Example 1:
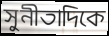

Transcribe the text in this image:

সুনীতাদিকে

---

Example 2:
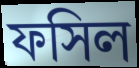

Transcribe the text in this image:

ফসিল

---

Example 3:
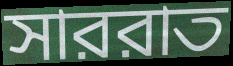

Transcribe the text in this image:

সাররাত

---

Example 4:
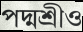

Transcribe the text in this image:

পদ্মশ্রীও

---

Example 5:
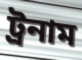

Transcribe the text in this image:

ট্রনাম